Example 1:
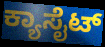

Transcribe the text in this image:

ಕ್ಯಾಸೈಟ್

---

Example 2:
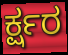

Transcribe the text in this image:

ರ್ಕ್ಷರ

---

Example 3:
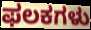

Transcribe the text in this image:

ಫಲಕಗಳು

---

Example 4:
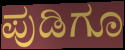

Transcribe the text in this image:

ಪುಡಿಗೂ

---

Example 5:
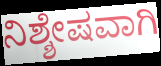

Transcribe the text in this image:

ನಿಶ್ಶೇಷವಾಗಿ